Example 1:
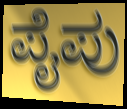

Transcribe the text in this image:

ಪೈಪು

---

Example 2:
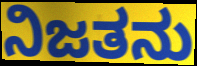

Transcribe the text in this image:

ನಿಜತನು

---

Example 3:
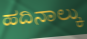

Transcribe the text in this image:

ಹದಿನಾಲ್ಕು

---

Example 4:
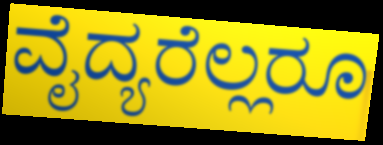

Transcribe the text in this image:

ವೈದ್ಯರೆಲ್ಲರೂ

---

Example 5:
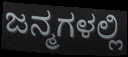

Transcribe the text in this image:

ಜನ್ಮಗಳಲ್ಲಿ